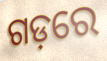
ଗଡ଼ରେ